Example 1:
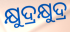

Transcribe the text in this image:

କ୍ଷୁଦ୍ରକ୍ଷୁଦ୍ର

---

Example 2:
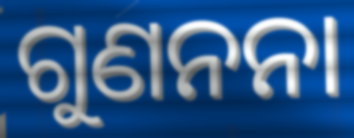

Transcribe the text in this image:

ଗୁଣନନା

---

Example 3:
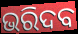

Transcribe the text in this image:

ଭରିଦବ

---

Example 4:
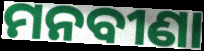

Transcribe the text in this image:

ମନବୀଣା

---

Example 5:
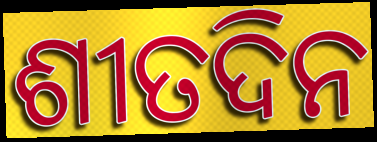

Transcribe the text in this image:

ଶୀତଦିନ